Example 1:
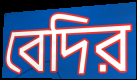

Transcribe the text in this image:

বেদির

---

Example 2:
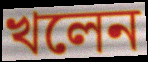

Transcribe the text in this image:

খলেন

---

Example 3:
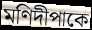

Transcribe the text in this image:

মণিদীপাকে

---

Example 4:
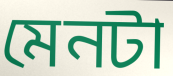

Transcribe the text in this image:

মেনটা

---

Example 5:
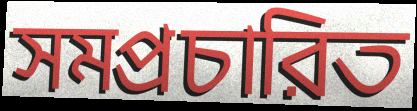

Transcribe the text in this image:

সমপ্রচারিত